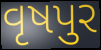
વૃષપુર